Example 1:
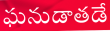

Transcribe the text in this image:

ఘనుడాతడే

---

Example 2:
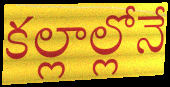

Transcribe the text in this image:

కల్లాల్లోనే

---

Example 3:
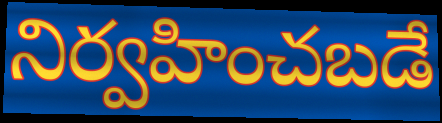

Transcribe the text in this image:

నిర్వహించబడే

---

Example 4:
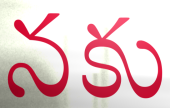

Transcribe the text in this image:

నకు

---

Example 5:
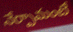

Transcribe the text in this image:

నేర్పామంటే